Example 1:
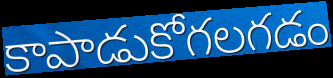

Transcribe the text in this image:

కాపాడుకోగలగడం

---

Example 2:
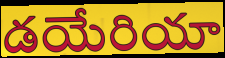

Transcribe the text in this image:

డయేరియా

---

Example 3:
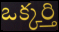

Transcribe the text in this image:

ఒక్కర్తి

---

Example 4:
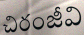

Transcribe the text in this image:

చిరంజీవి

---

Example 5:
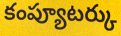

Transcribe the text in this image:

కంప్యూటర్కు